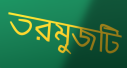
তরমুজটি